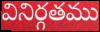
వినిర్గతము